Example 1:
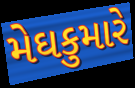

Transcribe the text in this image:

મેઘકુમારે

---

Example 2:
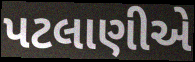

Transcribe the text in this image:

પટલાણીએ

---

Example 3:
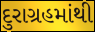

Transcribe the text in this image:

દુરાગ્રહમાંથી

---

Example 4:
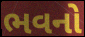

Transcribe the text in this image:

ભવનો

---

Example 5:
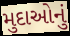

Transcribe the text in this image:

મુદાઓનું